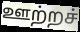
ஊற்றச்